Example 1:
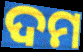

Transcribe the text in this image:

ଦମ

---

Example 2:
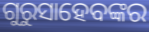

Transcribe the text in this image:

ଗୁରୁସାହେବଙ୍କର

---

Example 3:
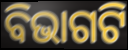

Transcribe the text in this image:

ବିଭାଗଟି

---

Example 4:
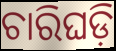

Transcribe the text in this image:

ଚାରିଘଡ଼ି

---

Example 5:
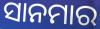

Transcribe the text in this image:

ସାନମାର